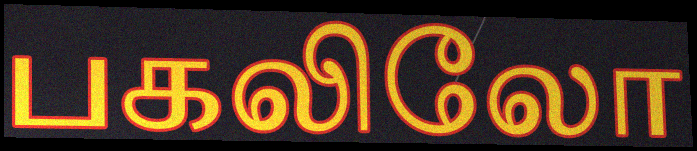
பகலிலோ